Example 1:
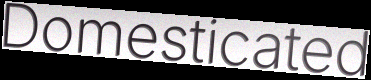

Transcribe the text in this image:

Domesticated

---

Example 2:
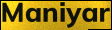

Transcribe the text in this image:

Maniyar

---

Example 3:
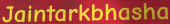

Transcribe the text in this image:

Jaintarkbhasha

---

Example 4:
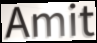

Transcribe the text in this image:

Amit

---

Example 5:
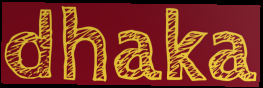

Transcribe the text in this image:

dhaka